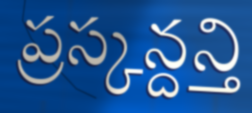
ప్రస్కన్దన్తి